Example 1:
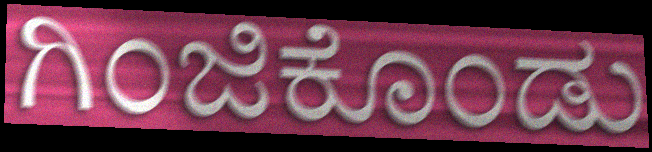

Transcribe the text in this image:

ಗಿಂಜಿಕೊಂಡು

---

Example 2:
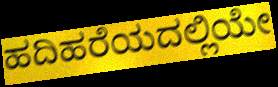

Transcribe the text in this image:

ಹದಿಹರೆಯದಲ್ಲಿಯೇ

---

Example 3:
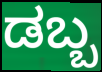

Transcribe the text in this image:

ಡಬ್ಬ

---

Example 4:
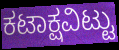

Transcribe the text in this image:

ಕಟಾಕ್ಷವಿಟ್ಟು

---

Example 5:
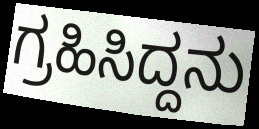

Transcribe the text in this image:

ಗ್ರಹಿಸಿದ್ದನು